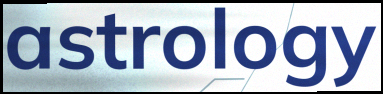
astrology